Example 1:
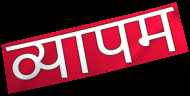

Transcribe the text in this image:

व्यापम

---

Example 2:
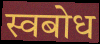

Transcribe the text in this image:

स्वबोध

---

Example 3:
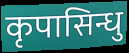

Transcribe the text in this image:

कृपासिन्धु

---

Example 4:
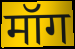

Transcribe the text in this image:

मॉग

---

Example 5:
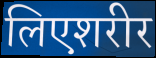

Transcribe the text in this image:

लिएशरीर